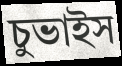
চুভাইস